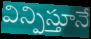
విన్పిస్తూనే